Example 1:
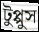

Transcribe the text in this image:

টুপ্পুস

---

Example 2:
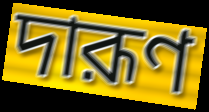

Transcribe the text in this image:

দারূণ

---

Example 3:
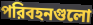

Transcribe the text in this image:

পরিবহনগুলো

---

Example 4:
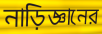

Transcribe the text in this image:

নাড়িজ্ঞানের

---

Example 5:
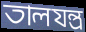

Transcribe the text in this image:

তালযন্ত্র